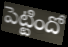
పెట్టిందో